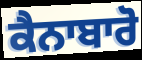
ਕੈਨਾਬਾਰੋ